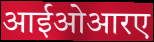
आईओआरए